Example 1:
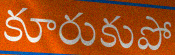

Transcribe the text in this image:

కూరుకుపో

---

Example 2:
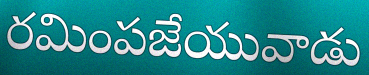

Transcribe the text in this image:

రమింపజేయువాడు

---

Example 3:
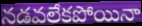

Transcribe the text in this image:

నడవలేకపోయినా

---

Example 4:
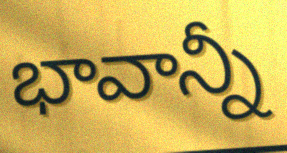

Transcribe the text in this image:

భావాన్నీ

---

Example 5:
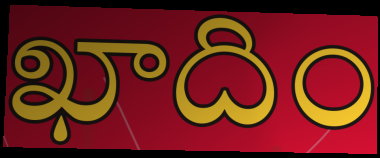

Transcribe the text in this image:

ఖాదిం